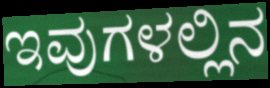
ಇವುಗಳಲ್ಲಿನ